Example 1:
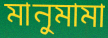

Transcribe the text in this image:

মানুমামা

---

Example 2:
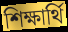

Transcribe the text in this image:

শিক্ষার্থি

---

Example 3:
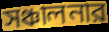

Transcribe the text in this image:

সঞ্চালনার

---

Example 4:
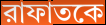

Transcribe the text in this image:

রাফাতকে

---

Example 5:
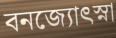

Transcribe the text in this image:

বনজ্যোৎস্না